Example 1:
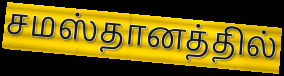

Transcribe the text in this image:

சமஸ்தானத்தில்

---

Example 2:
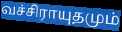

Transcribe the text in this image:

வச்சிராயுதமும்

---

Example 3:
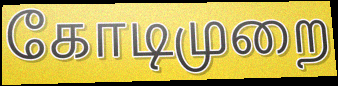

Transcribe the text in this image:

கோடிமுறை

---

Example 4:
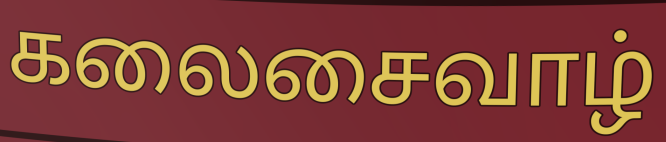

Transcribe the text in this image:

கலைசைவாழ்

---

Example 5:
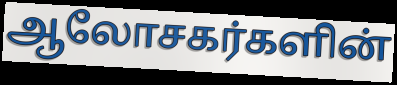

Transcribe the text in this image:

ஆலோசகர்களின்